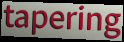
tapering